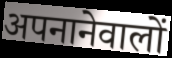
अपनानेवालों